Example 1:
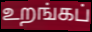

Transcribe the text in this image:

உறங்கப்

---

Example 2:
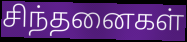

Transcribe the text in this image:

சிந்தனைகள்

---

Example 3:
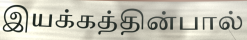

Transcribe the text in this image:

இயக்கத்தின்பால்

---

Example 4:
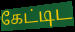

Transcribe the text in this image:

கேட்டிட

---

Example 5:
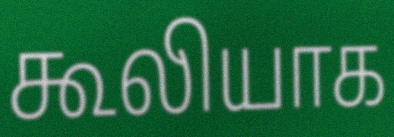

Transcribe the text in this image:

கூலியாக